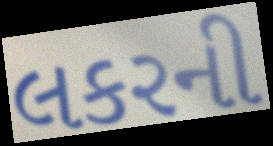
લકરની